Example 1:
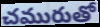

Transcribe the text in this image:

చమురుతో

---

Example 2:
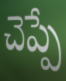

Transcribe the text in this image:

చెప్పే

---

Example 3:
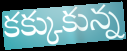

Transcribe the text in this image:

కక్కుకున్న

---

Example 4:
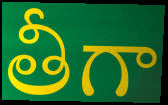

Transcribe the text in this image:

తీగా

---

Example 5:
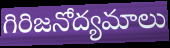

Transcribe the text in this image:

గిరిజనోద్యమాలు